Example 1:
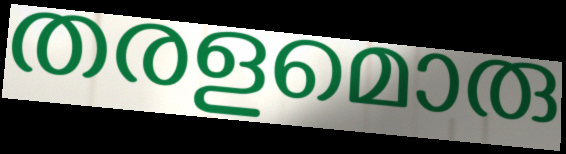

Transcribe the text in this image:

തരളമൊരു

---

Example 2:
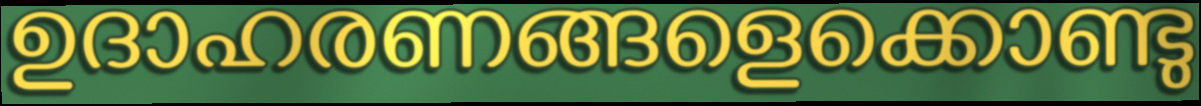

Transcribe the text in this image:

ഉദാഹരണങ്ങളെക്കൊണ്ടു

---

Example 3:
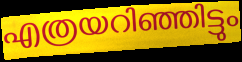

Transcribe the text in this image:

എത്രയറിഞ്ഞിട്ടും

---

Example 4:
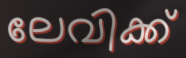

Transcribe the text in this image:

ലേവിക്ക്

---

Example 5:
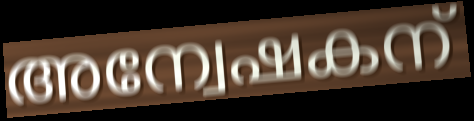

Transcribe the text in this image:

അന്വേഷകന്